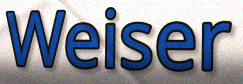
Weiser